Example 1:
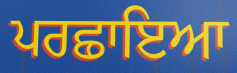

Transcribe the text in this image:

ਪਰਛਾਇਆ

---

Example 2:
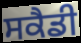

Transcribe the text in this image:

ਸਕੈਡੀ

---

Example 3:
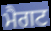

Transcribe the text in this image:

ਮੈਗਟ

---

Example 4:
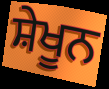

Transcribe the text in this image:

ਸ਼ੇਖੂਨ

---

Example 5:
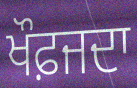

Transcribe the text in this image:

ਖੌਫ਼ਜਦਾ